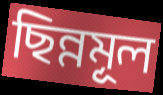
ছিন্নমূল